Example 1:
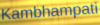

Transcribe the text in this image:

Kambhampati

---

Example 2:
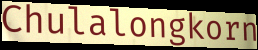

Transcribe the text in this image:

Chulalongkorn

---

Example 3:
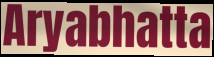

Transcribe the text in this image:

Aryabhatta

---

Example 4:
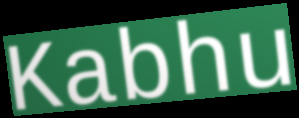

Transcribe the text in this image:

Kabhu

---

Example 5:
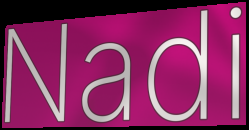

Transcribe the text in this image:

Nadi